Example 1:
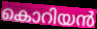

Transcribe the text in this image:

കൊറിയൻ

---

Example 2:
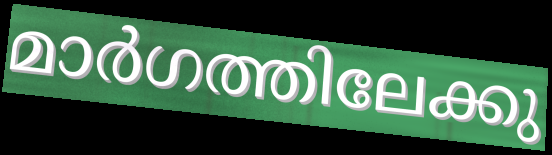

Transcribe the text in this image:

മാർഗത്തിലേക്കു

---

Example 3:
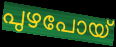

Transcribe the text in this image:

പുഴപോയ്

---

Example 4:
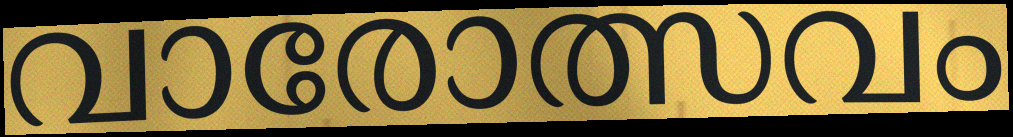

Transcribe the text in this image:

വാരോത്സവം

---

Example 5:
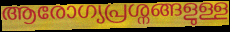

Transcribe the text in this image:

ആരോഗ്യപ്രശ്നങ്ങളുള്ള